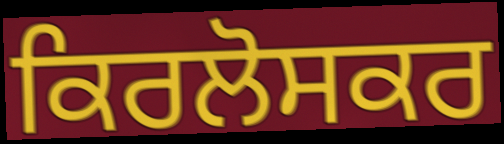
ਕਿਰਲੋਸਕਰ